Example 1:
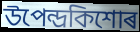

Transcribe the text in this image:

উপেন্দ্ৰকিশোৰ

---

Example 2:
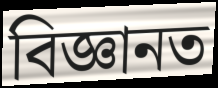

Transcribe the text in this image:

বিজ্ঞানত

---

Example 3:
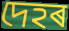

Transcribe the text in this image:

দেহৰ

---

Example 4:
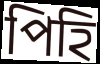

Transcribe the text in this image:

পিহি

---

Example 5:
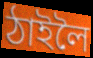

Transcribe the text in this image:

ঠাইলৈ